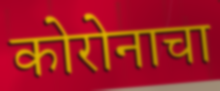
कोरोनाचा